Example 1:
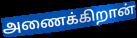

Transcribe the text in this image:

அணைக்கிறான்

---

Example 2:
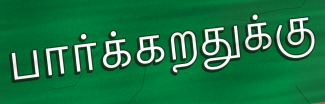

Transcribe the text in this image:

பார்க்கறதுக்கு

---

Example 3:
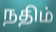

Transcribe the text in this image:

நதிம்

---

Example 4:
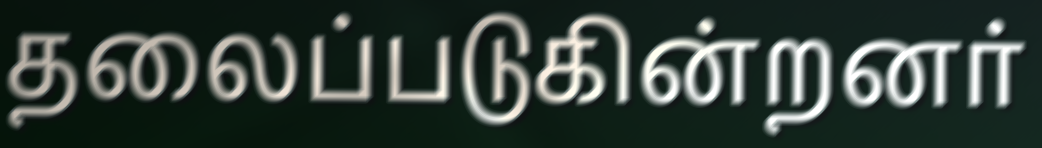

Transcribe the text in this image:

தலைப்படுகின்றனர்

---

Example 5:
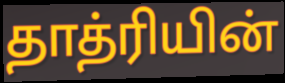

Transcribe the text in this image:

தாத்ரியின்